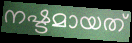
നഷ്ടമായത്